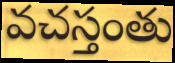
వచస్తంతు